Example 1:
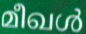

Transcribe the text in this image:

മീഖൾ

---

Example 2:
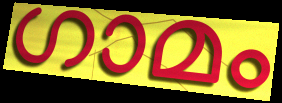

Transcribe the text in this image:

ഗാമം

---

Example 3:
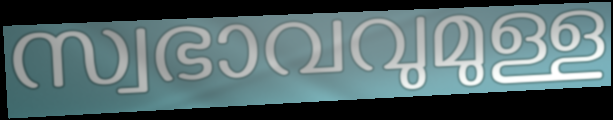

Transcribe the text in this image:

സ്വഭാവവുമുള്ള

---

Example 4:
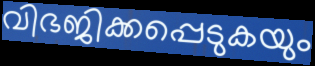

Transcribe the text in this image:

വിഭജിക്കപ്പെടുകയും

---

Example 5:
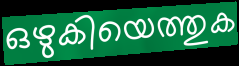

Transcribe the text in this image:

ഒഴുകിയെത്തുക